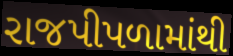
રાજપીપળામાંથી